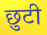
छुटी